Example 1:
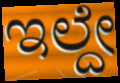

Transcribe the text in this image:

ಇಲ್ದೇ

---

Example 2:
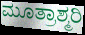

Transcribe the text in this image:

ಮೂತ್ರಾಶ್ಮರಿ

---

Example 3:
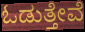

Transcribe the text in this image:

ಓಡುತ್ತೇವೆ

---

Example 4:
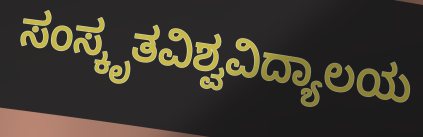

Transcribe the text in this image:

ಸಂಸ್ಕೃತವಿಶ್ವವಿದ್ಯಾಲಯ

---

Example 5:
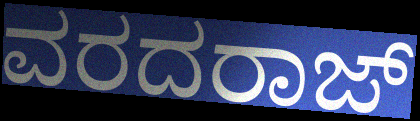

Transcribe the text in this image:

ವರದರಾಜ್